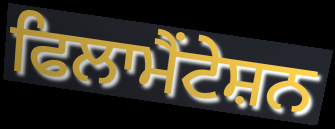
ਫਿਲਾਮੈਂਟੇਸ਼ਨ